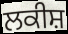
ਲਕੀਸ਼